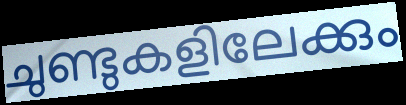
ചുണ്ടുകളിലേക്കും